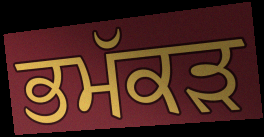
ਭਮੱਕੜ